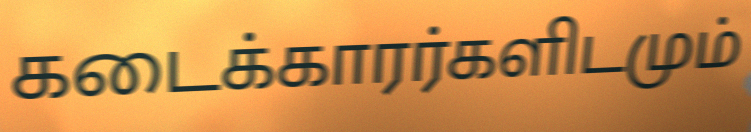
கடைக்காரர்களிடமும்